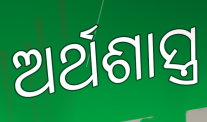
ଅର୍ଥଶାସ୍ତ୍ର